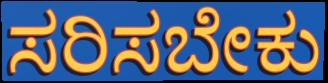
ಸರಿಸಬೇಕು